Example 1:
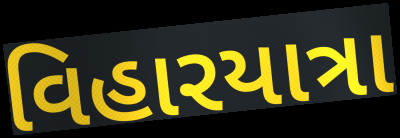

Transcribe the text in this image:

વિહારયાત્રા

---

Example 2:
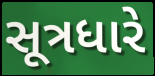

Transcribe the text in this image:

સૂત્રધારે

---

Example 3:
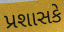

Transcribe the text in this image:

પ્રશાસકે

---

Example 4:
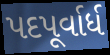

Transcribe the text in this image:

પદપૂર્વાર્ધ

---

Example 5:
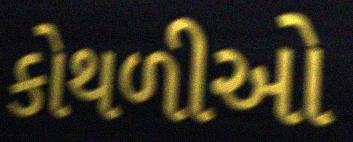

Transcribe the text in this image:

કોથળીઓ